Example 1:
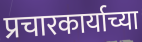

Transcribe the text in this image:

प्रचारकार्याच्या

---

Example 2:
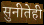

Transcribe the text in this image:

सुनीतेही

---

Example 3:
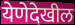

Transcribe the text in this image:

येणेदेखील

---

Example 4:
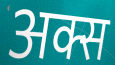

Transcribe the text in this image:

अक्स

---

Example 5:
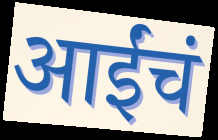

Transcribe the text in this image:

आईंचं